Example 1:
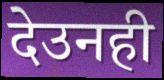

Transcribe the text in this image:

देउनही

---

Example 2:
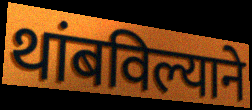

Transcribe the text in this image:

थांबविल्याने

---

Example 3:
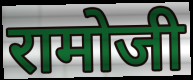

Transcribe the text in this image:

रामोजी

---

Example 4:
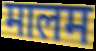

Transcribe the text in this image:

मालम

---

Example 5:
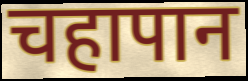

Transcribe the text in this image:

चहापान